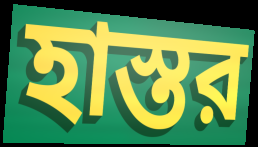
হাস্তর